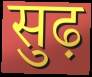
सुढ़